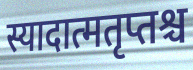
स्यादात्मतृप्तश्च